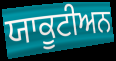
ਯਾਕੂਟੀਅਨ